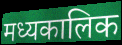
मध्यकालिक